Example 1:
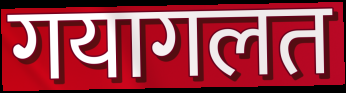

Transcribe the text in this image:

गयागलत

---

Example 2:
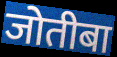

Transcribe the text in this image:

जोतीबा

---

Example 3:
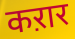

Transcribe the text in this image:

कऱार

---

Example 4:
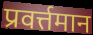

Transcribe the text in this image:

प्रवर्त्तमान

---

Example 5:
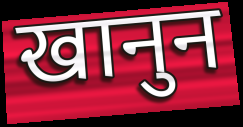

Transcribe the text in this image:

खानुन